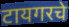
टायगरचे